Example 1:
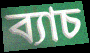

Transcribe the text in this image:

ব্যাচ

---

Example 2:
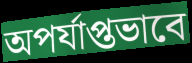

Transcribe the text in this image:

অপর্যাপ্তভাবে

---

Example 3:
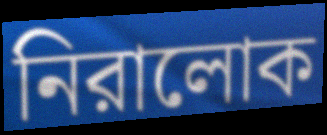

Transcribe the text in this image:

নিরালোক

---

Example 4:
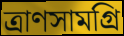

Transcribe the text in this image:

ত্রাণসামগ্রি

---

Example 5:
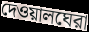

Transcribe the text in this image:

দেওয়ালঘেরা